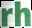
rh